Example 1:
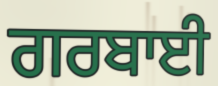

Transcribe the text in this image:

ਗਰਬਾਈ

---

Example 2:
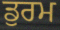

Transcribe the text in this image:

ਡੁਰਮ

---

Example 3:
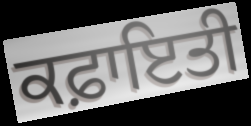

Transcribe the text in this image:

ਕਫ਼ਾਇਤੀ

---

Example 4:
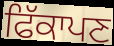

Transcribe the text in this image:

ਫਿੱਕਾਪਣ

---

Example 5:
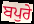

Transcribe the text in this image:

ਬਪੁਰੇ